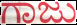
ಗಾಜು